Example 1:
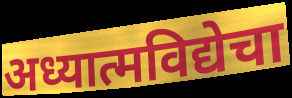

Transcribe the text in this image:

अध्यात्मविद्येचा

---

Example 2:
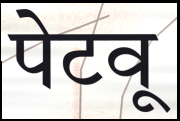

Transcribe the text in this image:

पेटवू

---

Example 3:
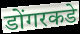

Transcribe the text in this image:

डोंगरकडे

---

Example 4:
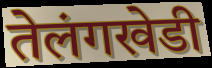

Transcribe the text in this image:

तेलंगखेडी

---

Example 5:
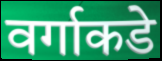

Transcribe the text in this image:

वर्गाकडे